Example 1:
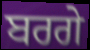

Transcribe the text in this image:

ਬਰਗੇ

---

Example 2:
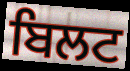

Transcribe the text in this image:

ਬਿਲਟ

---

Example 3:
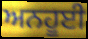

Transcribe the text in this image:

ਅਨਹੂਈ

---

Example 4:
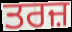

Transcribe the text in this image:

ਤਰਜ਼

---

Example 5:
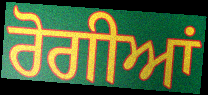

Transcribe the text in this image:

ਰੋਗੀਆਂ